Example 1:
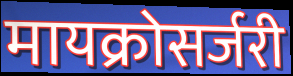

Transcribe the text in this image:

मायक्रोसर्जरी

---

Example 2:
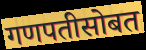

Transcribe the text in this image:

गणपतीसोबत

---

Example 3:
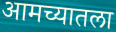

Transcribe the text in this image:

आमच्यातला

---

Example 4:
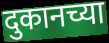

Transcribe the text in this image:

दुकानच्या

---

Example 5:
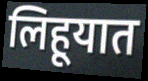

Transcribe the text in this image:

लिहूयात